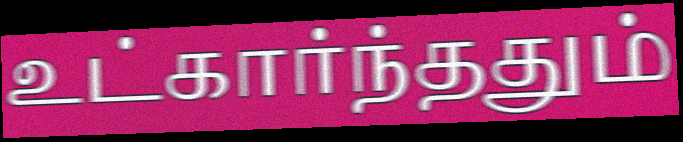
உட்கார்ந்ததும்